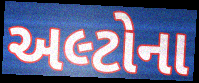
અલ્ટોના